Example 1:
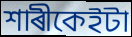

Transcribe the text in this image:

শাৰীকেইটা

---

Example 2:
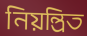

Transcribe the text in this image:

নিয়ন্ত্ৰিত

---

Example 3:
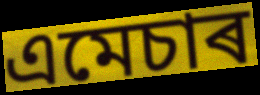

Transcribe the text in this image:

এমেচাৰ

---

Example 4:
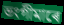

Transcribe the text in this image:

ভংগীমাৰে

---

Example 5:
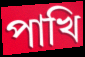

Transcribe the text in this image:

পাখি